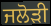
ਜਲੋੜੀ